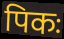
पिकः